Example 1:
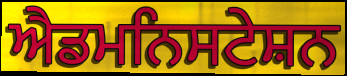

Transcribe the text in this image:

ਐਡਮਨਿਸਟੇਸ਼ਨ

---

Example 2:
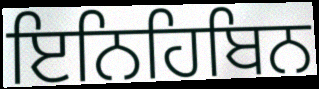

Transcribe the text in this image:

ਇਨਿਹਿਬਿਨ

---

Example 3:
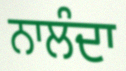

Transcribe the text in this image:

ਨਾਲੰਦਾ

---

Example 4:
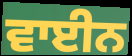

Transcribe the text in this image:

ਵਾਈਨ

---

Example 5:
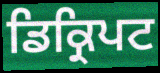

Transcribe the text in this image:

ਡਿਕ੍ਰਿਪਟ